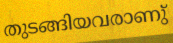
തുടങ്ങിയവരാണു്